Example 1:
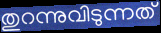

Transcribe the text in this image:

തുറന്നുവിടുന്നത്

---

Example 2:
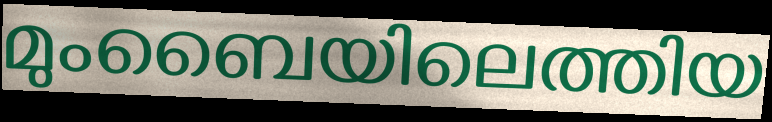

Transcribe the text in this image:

മുംബൈയിലെത്തിയ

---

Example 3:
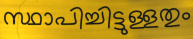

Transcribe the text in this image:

സ്ഥാപിച്ചിട്ടുള്ളതും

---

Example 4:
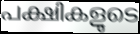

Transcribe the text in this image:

പക്ഷികളുടെ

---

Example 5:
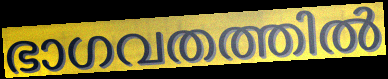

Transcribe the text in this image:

ഭാഗവതത്തിൽ